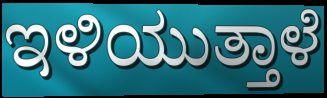
ಇಳಿಯುತ್ತಾಳೆ